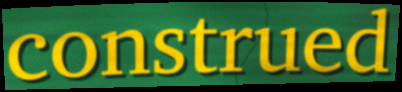
construed